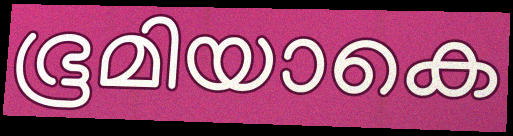
ഭൂമിയാകെ